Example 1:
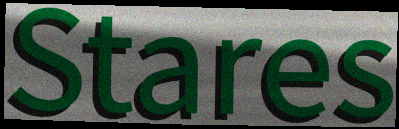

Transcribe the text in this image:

Stares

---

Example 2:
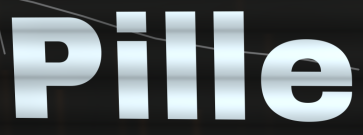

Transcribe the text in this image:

Pille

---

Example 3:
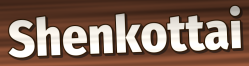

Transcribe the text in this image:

Shenkottai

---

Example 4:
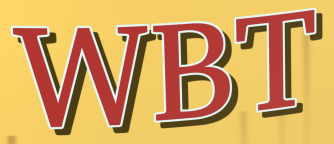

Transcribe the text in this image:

WBT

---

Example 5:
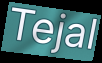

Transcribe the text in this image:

Tejal